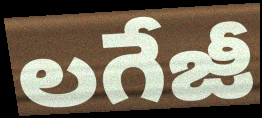
లగేజీ